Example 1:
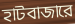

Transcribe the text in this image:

হাটবাজারে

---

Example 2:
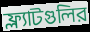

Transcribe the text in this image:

ফ্ল্যাটগুলির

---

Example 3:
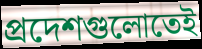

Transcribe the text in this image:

প্রদেশগুলোতেই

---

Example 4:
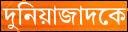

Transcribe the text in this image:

দুনিয়াজাদকে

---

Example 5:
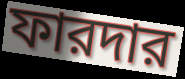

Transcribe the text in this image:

ফারদার